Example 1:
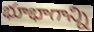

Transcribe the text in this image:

భూభాగాన్ని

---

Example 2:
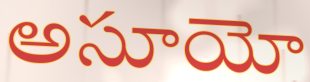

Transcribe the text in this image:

అసూయో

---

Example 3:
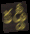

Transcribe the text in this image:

కడ్డీ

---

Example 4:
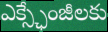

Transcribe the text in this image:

ఎక్స్ఛేంజీలకు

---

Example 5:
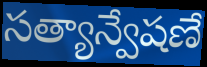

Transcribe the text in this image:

సత్యాన్వేషణే